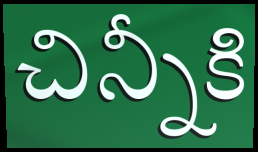
చిన్నీకి